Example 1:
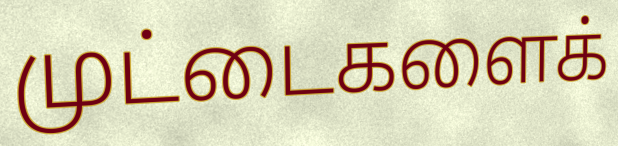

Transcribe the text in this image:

முட்டைகளைக்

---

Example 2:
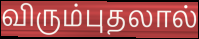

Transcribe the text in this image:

விரும்புதலால்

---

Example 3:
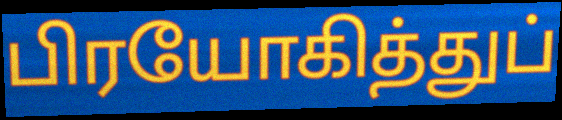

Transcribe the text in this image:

பிரயோகித்துப்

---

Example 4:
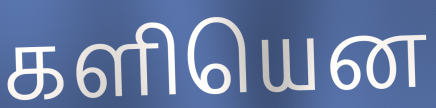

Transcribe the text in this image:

களியென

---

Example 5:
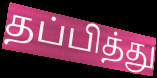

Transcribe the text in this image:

தப்பித்து